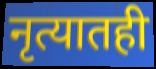
नृत्यातही